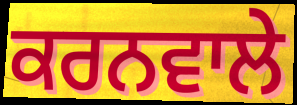
ਕਰਨਵਾਲੇ